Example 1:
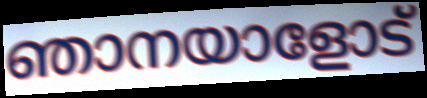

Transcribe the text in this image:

ഞാനയാളോട്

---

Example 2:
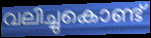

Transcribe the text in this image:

വലിച്ചുകൊണ്ട്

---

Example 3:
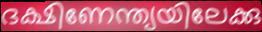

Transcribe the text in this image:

ദക്ഷിണേന്ത്യയിലേക്കു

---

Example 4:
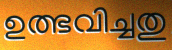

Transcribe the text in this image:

ഉത്ഭവിച്ചതു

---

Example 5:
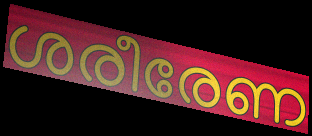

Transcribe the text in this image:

ശരീരേണ